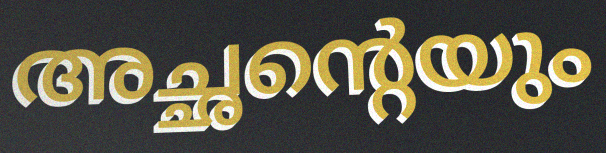
അച്ഛന്റെയും